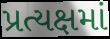
પ્રત્‍યક્ષમાં